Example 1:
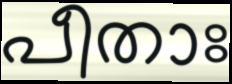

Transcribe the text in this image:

പീതാഃ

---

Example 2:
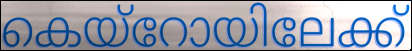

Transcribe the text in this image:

കെയ്റോയിലേക്ക്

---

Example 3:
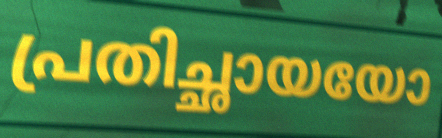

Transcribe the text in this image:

പ്രതിച്ഛായയോ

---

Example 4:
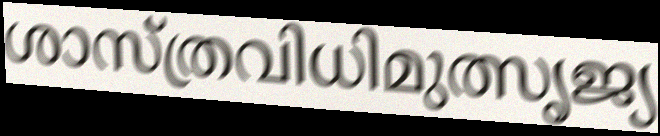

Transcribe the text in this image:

ശാസ്ത്രവിധിമുത്സൃജ്യ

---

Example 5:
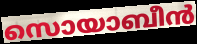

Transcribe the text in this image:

സൊയാബീൻ